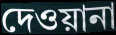
দেওয়ানা